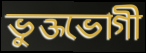
ভুক্তভোগী